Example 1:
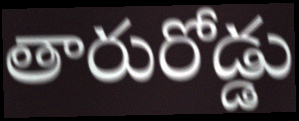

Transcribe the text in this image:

తారురోడ్డు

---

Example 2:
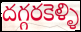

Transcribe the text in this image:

దగ్గరకెళ్ళి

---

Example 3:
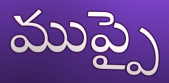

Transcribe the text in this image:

ముప్పై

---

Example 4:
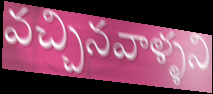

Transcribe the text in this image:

వచ్చినవాళ్ళని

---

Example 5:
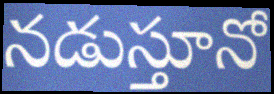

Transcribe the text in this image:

నడుస్తూనో